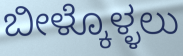
ಬೀಳ್ಕೊಳ್ಳಲು